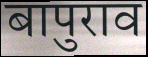
बापुराव